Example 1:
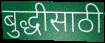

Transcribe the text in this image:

बुद्धीसाठी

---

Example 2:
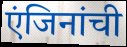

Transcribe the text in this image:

एंजिनांची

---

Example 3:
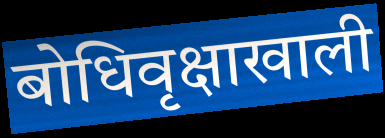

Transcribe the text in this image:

बोधिवृक्षाखाली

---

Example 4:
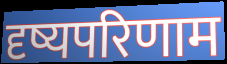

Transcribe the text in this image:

दृष्यपरिणाम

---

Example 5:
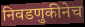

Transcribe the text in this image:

निवडणुकीनेच